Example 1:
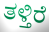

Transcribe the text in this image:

ತಳ್ತಿರೆ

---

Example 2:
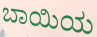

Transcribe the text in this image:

ಬಾಯಿಯ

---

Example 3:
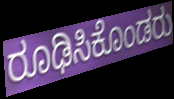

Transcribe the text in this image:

ರೂಢಿಸಿಕೊಂಡರು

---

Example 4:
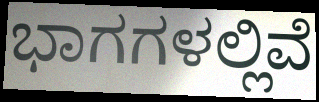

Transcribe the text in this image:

ಭಾಗಗಳಲ್ಲಿವೆ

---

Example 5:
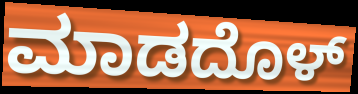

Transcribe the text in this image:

ಮಾಡದೊಳ್